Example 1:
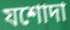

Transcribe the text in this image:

যশোদা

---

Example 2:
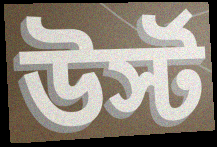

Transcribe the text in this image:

উর্স্ট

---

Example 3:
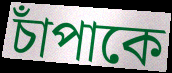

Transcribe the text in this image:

চাঁপাকে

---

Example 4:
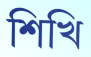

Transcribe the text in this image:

শিখি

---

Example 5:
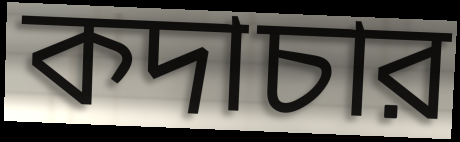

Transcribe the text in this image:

কদাচার